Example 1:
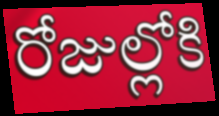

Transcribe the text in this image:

రోజుల్లోకి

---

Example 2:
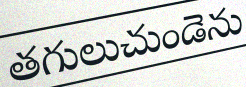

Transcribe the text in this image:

తగులుచుండెను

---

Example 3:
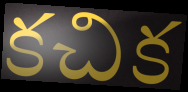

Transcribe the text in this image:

కచిక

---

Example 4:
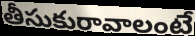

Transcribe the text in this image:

తీసుకురావాలంటే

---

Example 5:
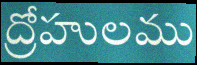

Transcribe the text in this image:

ద్రోహులము